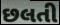
છલતી